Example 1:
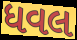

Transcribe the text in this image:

ધવલ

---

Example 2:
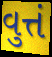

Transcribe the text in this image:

વુત્તં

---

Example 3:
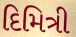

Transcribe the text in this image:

દિમિત્રી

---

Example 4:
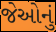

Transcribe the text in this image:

જેઓનું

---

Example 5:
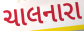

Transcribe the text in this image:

ચાલનારા